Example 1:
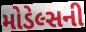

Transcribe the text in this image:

મોડેલ્સની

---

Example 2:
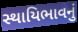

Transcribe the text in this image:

સ્થાયિભાવનું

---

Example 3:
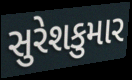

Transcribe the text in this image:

સુરેશકુમાર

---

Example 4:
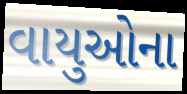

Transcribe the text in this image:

વાયુઓના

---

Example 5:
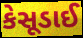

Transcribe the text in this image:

કેસૂડાઈ